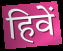
हिवें